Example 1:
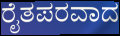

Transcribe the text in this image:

ರೈತಪರವಾದ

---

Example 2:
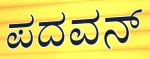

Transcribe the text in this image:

ಪದವನ್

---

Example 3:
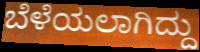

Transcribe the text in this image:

ಬೆಳೆಯಲಾಗಿದ್ದು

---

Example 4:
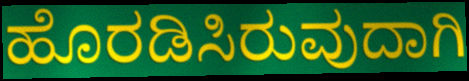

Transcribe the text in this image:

ಹೊರಡಿಸಿರುವುದಾಗಿ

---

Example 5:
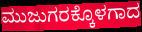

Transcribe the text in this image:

ಮುಜುಗರಕ್ಕೊಳಗಾದ